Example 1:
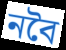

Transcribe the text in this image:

নবৈ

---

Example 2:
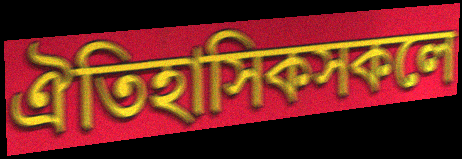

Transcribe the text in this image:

ঐতিহাসিকসকলে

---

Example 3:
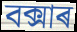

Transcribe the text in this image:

বক্সাৰ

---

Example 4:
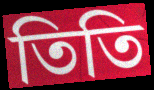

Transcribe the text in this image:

তিতি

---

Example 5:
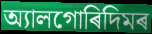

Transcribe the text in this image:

অ্যালগোৰিদিমৰ